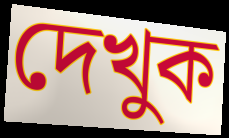
দেখুক